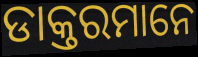
ଡାକ୍ତରମାନେ